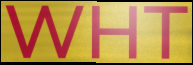
WHT